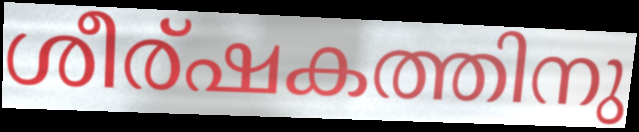
ശീര്ഷകത്തിനു